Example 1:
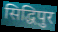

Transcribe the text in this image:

सिद्धिपुर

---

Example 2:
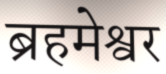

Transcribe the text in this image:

ब्रहमेश्वर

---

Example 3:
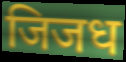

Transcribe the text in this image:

जिजध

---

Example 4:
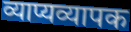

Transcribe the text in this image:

व्याप्यव्यापक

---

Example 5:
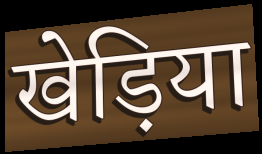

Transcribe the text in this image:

खेड़िया